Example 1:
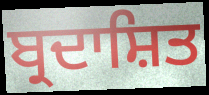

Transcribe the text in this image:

ਬ੍ਰਦਾਸ਼ਿਤ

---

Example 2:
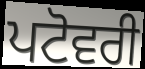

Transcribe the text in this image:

ਪਟੋਵਰੀ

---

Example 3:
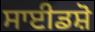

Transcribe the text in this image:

ਸਾਈਡਸ਼ੋ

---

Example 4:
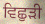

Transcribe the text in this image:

ਵਿਛੁੜੀ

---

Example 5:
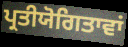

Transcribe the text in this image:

ਪ੍ਰਤੀਯੋਗਿਤਾਵਾਂ